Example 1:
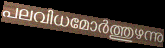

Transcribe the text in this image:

പലവിധമോർത്തുഴന്നു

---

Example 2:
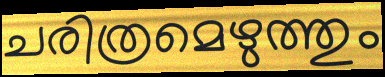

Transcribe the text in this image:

ചരിത്രമെഴുത്തും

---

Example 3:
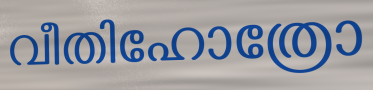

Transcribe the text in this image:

വീതിഹോത്രോ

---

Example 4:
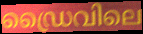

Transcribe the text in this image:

ഡ്രൈവിലെ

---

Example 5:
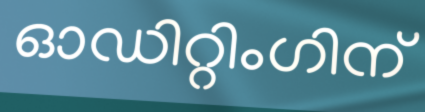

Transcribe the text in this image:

ഓഡിറ്റിംഗിന്